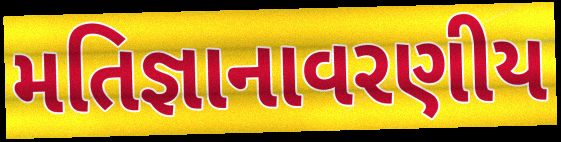
મતિજ્ઞાનાવરણીય